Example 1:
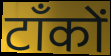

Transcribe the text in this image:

टाँकों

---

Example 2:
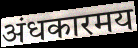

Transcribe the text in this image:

अंधकारमय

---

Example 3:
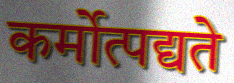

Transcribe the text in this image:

कर्मोत्पद्यते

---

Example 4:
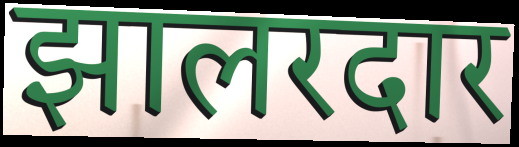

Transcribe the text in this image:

झालरदार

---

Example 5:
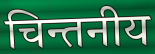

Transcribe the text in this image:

चिन्तनीय